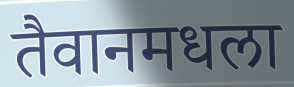
तैवानमधला